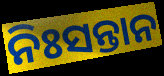
ନିଃସନ୍ତାନ